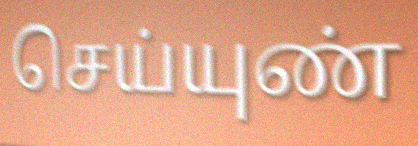
செய்யுண்